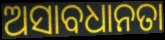
ଅସାବଧାନତା